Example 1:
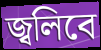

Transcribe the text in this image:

জ্বলিবে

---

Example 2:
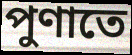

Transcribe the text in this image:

পুণাতে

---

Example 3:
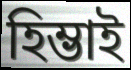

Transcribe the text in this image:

হিম্ভাই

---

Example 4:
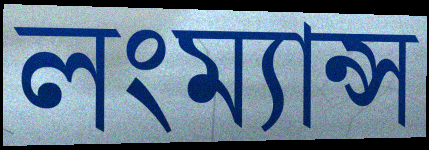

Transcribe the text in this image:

লংম্যান্স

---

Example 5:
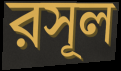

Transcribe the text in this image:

রসূল